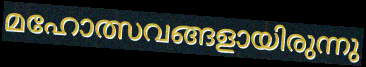
മഹോത്സവങ്ങളായിരുന്നു